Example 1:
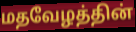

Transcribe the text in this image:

மதவேழத்தின்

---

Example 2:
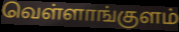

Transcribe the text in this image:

வெள்ளாங்குளம்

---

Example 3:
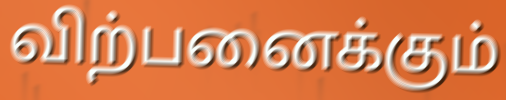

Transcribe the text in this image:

விற்பனைக்கும்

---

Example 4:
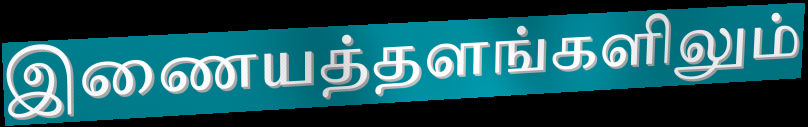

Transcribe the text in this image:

இணையத்தளங்களிலும்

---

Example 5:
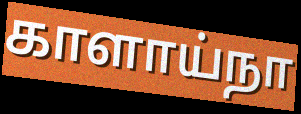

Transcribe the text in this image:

காளாய்நா